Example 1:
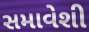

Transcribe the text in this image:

સમાવેશી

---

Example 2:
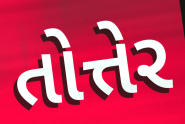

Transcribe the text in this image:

તોત્તેર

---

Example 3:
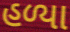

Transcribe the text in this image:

હળ્યા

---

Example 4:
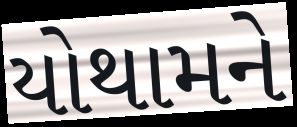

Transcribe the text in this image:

યોથામને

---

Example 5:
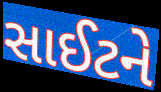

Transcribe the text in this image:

સાઈટને